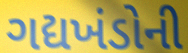
ગદ્યખંડોની